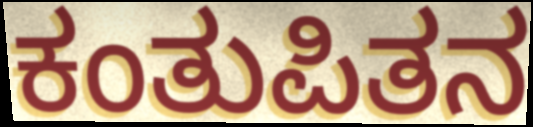
ಕಂತುಪಿತನ